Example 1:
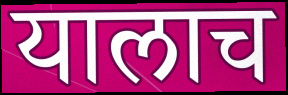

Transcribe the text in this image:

यालाच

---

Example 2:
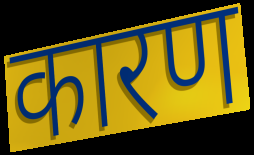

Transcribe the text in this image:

कारण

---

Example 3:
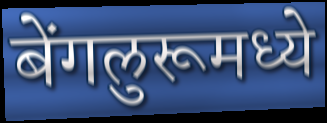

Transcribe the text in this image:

बेंगलुरूमध्ये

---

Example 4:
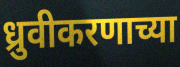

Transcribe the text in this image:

ध्रुवीकरणाच्या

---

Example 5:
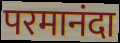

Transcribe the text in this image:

परमानंदा